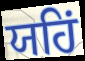
ਯਹਿਂ